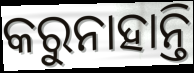
କରୁନାହାନ୍ତି